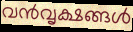
വൻവൃക്ഷങ്ങൾ